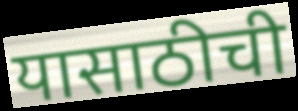
यासाठीची